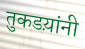
तुकडय़ांनी